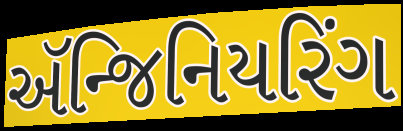
ઍન્જિનિયરિંગ